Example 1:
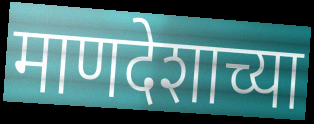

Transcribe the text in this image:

माणदेशाच्या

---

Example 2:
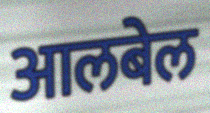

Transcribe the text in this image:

आलबेल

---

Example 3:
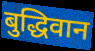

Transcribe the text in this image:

बुद्धिवान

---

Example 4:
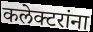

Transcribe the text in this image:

कलेक्टरांना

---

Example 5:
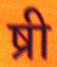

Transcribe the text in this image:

ष्री